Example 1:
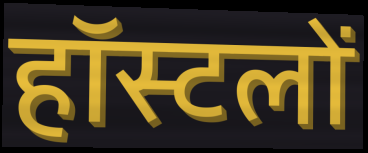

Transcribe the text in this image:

हॉस्टलों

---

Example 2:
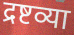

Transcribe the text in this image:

द्रष्टव्या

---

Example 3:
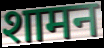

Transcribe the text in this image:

शामन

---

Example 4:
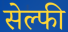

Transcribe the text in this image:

सेल्फी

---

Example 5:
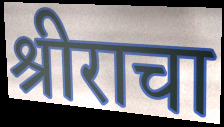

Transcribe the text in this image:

श्रीराचा